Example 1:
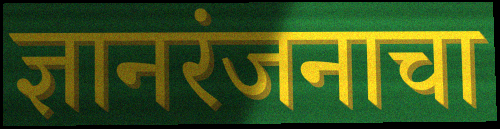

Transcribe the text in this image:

ज्ञानरंजनाचा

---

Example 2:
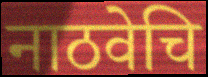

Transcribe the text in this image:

नाठवेचि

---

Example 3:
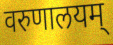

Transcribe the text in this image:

वरुणालयम्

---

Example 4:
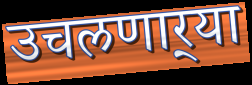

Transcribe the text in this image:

उचलणार्या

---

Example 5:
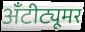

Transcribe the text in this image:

अँटीट्यूमर